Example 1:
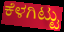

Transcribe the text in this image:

ಕೆಳಗಿಟ್ಟು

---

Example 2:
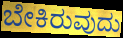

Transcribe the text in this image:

ಬೇಕಿರುವುದು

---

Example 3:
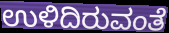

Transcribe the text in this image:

ಉಳಿದಿರುವಂತೆ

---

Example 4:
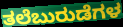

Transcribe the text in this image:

ತಲೆಬುರುಡೆಗಳ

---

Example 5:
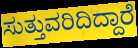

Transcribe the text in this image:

ಸುತ್ತುವರಿದಿದ್ದಾರೆ